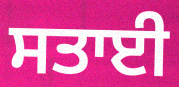
ਸਤਾਈ